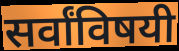
सर्वांविषयी